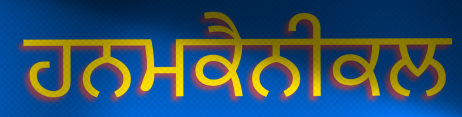
ਹਨਮਕੈਨੀਕਲ